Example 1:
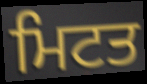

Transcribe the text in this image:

ਮਿਟਤ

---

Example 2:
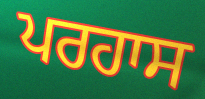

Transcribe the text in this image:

ਪਰਹਾਸ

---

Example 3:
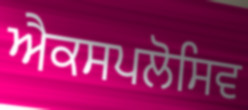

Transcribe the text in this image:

ਐਕਸਪਲੋਸਿਵ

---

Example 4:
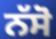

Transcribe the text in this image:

ਨੱਸੋ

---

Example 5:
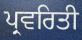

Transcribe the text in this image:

ਪ੍ਰਵਰਿਤੀ